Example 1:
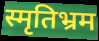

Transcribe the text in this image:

स्मृतिभ्रम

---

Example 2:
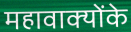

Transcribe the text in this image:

महावाक्योंके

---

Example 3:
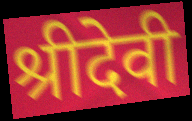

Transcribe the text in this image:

श्रीदेवी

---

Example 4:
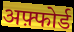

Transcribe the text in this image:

अफ़्फोर्ड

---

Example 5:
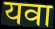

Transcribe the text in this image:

यवा